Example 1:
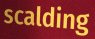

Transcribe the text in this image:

scalding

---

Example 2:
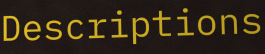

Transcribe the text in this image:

Descriptions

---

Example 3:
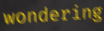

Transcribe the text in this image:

wondering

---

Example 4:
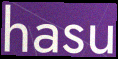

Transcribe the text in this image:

hasu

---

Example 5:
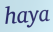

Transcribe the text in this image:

haya